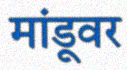
मांडूवर